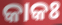
କାକଃ